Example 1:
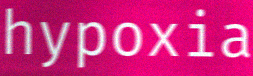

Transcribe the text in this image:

hypoxia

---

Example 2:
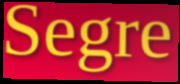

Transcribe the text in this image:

Segre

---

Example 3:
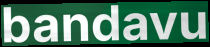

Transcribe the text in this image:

bandavu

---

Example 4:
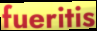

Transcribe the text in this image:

fueritis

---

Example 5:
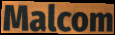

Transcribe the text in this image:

Malcom